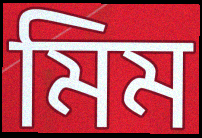
মিম